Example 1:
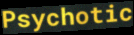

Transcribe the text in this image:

Psychotic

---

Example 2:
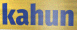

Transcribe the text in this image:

kahun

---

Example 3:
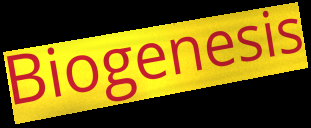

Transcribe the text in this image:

Biogenesis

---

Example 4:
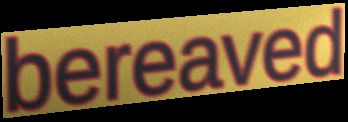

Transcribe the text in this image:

bereaved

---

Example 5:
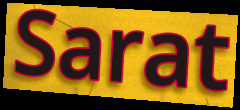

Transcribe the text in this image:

Sarat